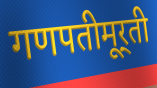
गणपतीमूर्ती